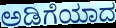
ಅಡಿಗೆಯಾದ